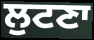
ਲੁਟਣਾ